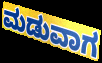
ಮಡುವಾಗ